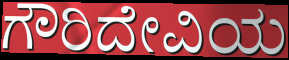
ಗೌರಿದೇವಿಯ